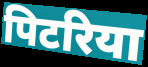
पिटरिया